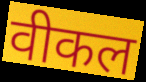
वीकल